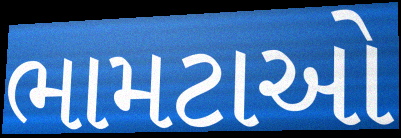
ભામટાઓ